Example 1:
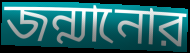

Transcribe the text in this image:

জন্মানোর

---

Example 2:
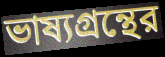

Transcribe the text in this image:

ভাষ্যগ্রন্থের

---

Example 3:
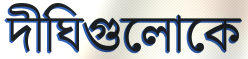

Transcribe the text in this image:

দীঘিগুলোকে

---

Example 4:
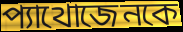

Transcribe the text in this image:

প্যাথোজেনকে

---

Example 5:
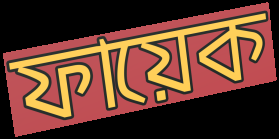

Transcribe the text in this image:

ফায়েক